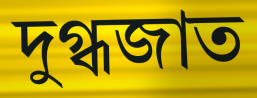
দুগ্ধজাত